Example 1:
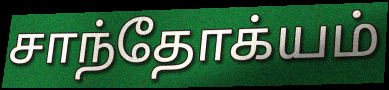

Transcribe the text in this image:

சாந்தோக்யம்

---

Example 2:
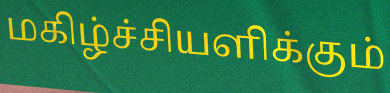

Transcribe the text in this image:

மகிழ்ச்சியளிக்கும்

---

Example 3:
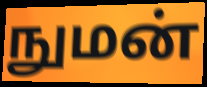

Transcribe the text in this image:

நுமன்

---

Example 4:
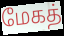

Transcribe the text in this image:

மேகத்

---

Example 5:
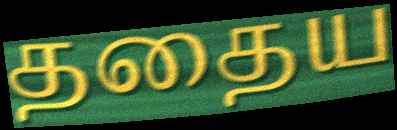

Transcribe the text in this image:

ததைய